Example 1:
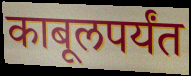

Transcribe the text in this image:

काबूलपर्यंत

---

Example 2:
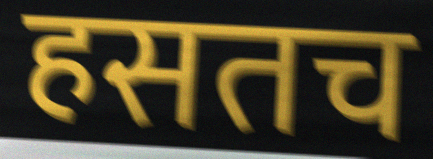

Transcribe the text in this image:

हसतच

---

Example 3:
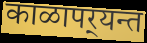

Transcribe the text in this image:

काळापर्यन्त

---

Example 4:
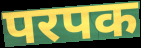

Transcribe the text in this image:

परपक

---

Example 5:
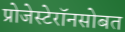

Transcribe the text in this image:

प्रोजेस्टेरॉनसोबत